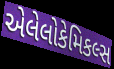
એલેલોકેમિકલ્સ